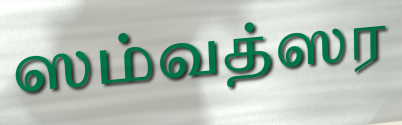
ஸம்வத்ஸர